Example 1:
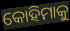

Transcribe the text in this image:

କୋହିମାକୁ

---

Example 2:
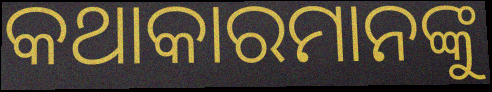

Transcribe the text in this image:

କଥାକାରମାନଙ୍କୁ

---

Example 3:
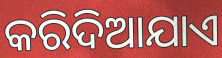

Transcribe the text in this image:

କରିଦିଆଯାଏ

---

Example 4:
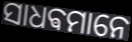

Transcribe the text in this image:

ସାଧଵମାନେ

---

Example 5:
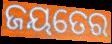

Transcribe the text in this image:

ଜୟତେର